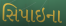
સિપાઇના